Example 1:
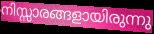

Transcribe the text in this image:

നിസ്സാരങ്ങളായിരുന്നു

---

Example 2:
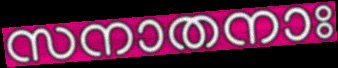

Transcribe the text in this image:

സനാതനാഃ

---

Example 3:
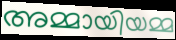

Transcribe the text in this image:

അമ്മായിയമ്മ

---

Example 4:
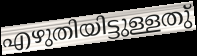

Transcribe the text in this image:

എഴുതിയിട്ടുള്ളതു്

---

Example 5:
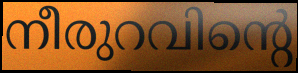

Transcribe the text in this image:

നീരുറവിന്റെ